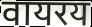
वायरय